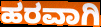
ಹರವಾಗಿ